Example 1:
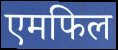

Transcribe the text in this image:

एमफिल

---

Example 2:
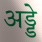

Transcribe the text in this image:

अड्डे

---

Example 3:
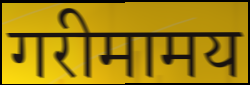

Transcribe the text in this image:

गरीमामय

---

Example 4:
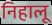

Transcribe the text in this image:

निहालू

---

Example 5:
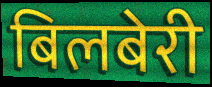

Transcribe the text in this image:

बिलबेरी